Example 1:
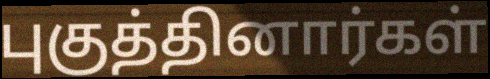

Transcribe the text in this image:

புகுத்தினார்கள்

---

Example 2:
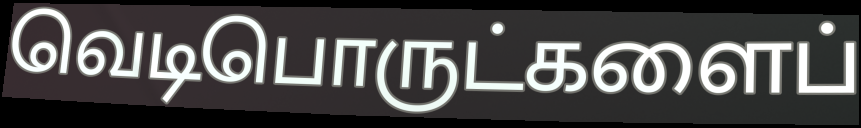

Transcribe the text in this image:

வெடிபொருட்களைப்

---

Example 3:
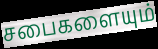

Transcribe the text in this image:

சபைகளையும்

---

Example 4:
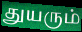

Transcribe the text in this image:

துயரும்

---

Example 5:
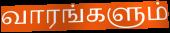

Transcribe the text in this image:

வாரங்களும்